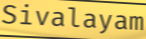
Sivalayam